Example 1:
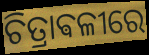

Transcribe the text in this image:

ଚିତ୍ରାଵଳୀରେ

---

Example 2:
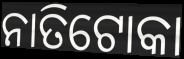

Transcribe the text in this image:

ନାତିଟୋକା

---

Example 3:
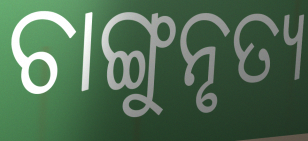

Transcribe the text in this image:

ଚାଙ୍ଗୁନୃତ୍ୟ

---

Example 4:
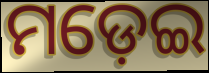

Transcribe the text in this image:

ମଡ଼େଇ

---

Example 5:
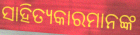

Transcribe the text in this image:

ସାହିତ୍ୟକାରମାନଙ୍କ